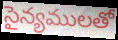
సైన్యములతో